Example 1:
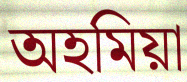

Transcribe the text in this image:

অহমিয়া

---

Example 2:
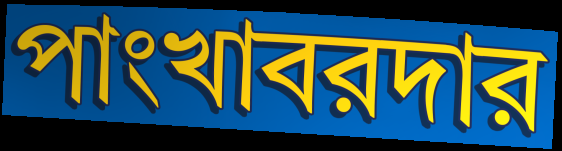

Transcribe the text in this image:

পাংখাবরদার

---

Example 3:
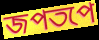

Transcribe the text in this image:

জপতপে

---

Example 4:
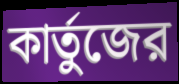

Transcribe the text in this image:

কার্তুজের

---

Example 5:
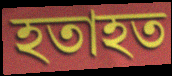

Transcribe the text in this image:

হতাহত